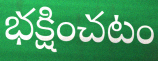
భక్షించటం